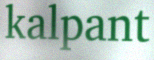
kalpant